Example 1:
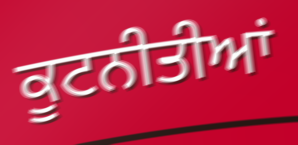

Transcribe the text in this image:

ਕੂਟਨੀਤੀਆਂ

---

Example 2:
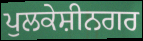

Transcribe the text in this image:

ਪੁਲਕੇਸ਼ੀਨਗਰ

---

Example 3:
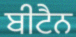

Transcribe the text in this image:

ਬੀਟੈਨ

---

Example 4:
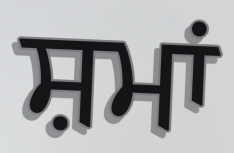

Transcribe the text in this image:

ਸ਼ਮਾਂ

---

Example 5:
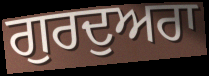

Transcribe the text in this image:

ਗੁਰਦੁਅਰਾ